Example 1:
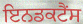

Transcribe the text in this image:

ਇਨਡਕਟੈਂਸ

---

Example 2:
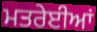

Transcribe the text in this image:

ਮਤਰੇਈਆਂ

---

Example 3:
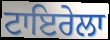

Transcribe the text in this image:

ਟਾਇਰੇਲਾ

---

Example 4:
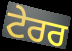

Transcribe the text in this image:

ਟੇਰਰ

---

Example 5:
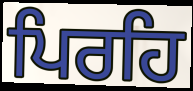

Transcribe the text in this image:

ਪਿਰਹਿ